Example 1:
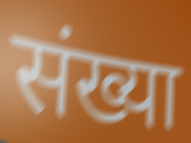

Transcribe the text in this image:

संख्या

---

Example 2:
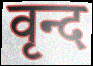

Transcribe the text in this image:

वृन्द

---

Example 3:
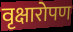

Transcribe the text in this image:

वृक्षारोपण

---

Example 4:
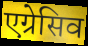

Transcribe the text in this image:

एग्रेसिव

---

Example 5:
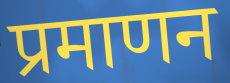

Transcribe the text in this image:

प्रमाणन